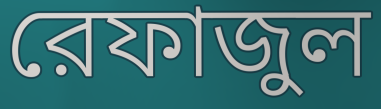
রেফাজুল